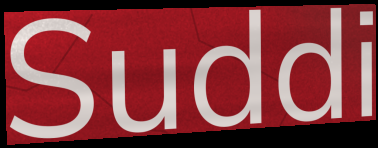
Suddi